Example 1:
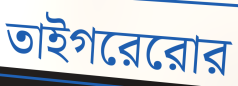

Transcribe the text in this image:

তাইগরেরোর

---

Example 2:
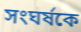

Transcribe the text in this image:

সংঘর্ষকে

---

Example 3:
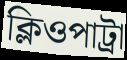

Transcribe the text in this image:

ক্লিওপাট্রা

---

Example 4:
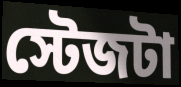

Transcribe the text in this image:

স্টেজটা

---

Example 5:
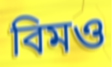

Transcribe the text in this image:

বিমও